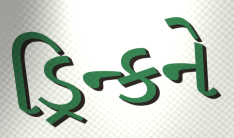
ડ્રિન્કને